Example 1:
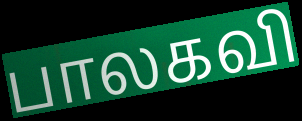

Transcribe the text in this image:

பாலகவி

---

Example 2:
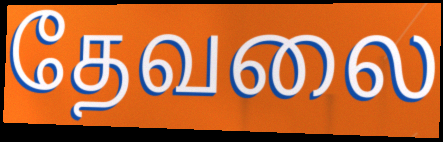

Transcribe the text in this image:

தேவலை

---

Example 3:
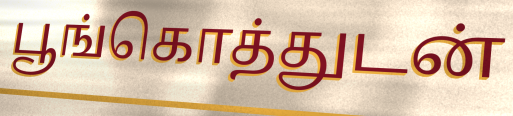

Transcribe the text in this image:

பூங்கொத்துடன்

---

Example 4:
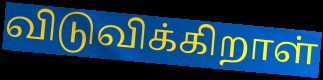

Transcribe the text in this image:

விடுவிக்கிறாள்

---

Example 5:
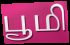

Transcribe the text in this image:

பூமி